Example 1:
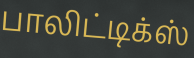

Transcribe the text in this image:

பாலிட்டிக்ஸ்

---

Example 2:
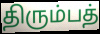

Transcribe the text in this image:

திரும்பத்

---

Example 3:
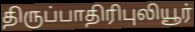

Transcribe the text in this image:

திருப்பாதிரிபுலியூர்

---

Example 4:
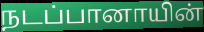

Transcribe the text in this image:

நடப்பானாயின்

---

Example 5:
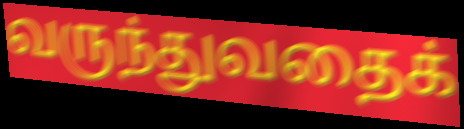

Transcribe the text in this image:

வருந்துவதைக்